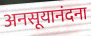
अनसूयानंदना